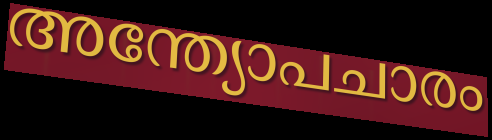
അന്ത്യോപചാരം